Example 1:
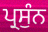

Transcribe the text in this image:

ਪ੍ਰਸੁੰਨ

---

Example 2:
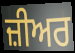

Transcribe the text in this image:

ਜ਼ੀਅਰ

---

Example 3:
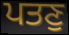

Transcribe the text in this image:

ਪਤਣੁ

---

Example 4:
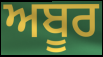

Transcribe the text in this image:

ਅਬੂਰ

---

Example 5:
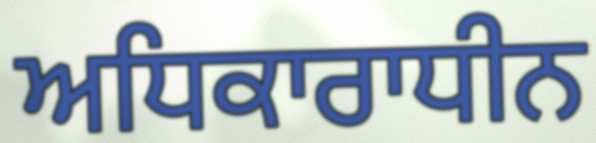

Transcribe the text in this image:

ਅਧਿਕਾਰਾਧੀਨ